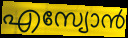
എസ്യോൻ